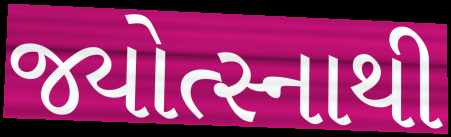
જ્યોત્સ્નાથી